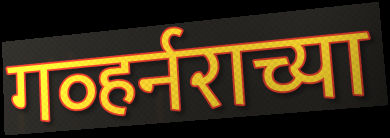
गव्हर्नराच्या